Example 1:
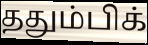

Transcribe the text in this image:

ததும்பிக்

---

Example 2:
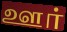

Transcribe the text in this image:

ஊர்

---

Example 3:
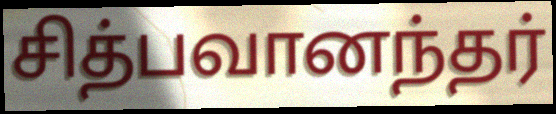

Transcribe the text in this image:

சித்பவானந்தர்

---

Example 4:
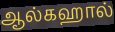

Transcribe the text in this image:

ஆல்கஹால்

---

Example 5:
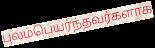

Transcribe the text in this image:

புலம்பெயர்ந்தவர்களாக